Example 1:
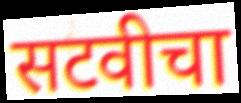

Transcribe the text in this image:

सटवीचा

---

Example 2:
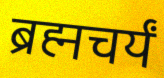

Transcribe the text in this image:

ब्रह्मचर्यं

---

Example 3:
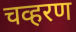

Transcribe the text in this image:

चव्हरण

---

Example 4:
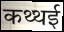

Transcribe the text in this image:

कथ्थई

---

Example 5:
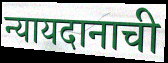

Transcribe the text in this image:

न्यायदानाची